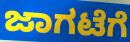
ಜಾಗಟೆಗೆ